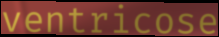
ventricose